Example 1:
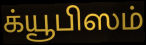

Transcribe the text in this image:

க்யூபிஸம்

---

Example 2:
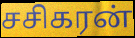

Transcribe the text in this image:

சசிகரன்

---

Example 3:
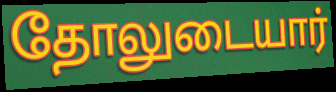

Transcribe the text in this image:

தோலுடையார்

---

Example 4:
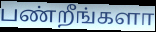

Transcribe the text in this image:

பண்றீங்களா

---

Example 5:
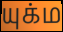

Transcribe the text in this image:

யுக்ம